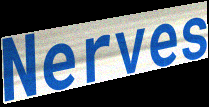
Nerves